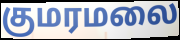
குமரமலை